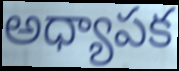
అధ్యాపక